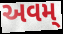
અવમ્